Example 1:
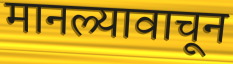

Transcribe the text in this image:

मानल्यावाचून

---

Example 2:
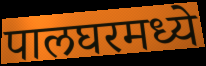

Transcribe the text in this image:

पालघरमध्ये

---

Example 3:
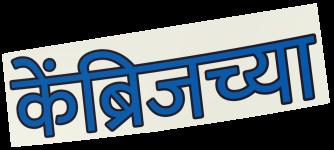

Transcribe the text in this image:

केंब्रिजच्या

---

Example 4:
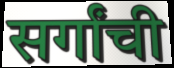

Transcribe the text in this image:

सर्गांची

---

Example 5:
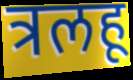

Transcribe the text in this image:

त्रलहू